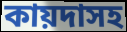
কায়দাসহ